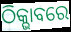
ଠିକ୍ଭାବରେ